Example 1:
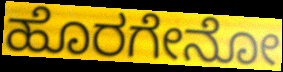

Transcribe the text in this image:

ಹೊರಗೇನೋ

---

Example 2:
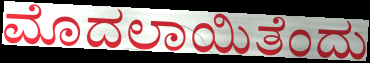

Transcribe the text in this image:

ಮೊದಲಾಯಿತೆಂದು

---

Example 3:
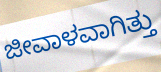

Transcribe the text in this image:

ಜೀವಾಳವಾಗಿತ್ತು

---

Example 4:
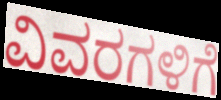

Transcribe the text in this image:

ವಿವರಗಳಿಗೆ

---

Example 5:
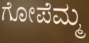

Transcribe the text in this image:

ಗೋಪೆಮ್ಮ